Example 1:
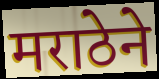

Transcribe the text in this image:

मराठेने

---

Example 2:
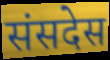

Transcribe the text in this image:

संसदेस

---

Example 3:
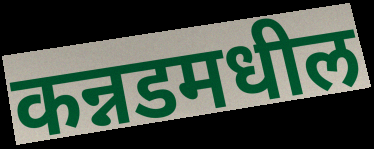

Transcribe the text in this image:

कन्नडमधील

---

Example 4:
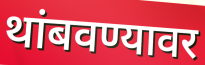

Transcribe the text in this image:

थांबवण्यावर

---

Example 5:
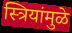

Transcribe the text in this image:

स्त्रियांमुळे